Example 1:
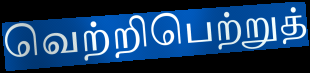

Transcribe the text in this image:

வெற்றிபெற்றுத்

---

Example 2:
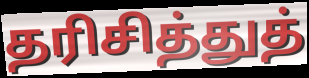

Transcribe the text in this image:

தரிசித்துத்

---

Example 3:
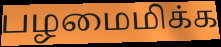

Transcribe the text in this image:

பழமைமிக்க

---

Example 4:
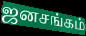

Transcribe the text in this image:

ஜனசங்கம்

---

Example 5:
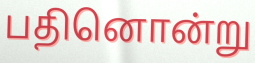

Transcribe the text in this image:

பதினொன்று